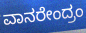
ವಾನರೇಂದ್ರಂ